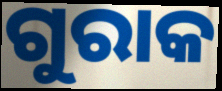
ଗୁରାକ